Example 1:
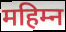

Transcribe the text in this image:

महिम्न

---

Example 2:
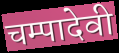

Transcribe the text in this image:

चम्पादेवी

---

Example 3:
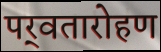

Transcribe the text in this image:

पर्वतारोहण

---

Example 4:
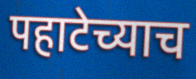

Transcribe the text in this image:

पहाटेच्याच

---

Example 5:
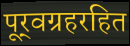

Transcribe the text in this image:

पूर्वग्रहरहित